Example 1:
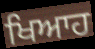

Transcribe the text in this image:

ਖਿਆਹ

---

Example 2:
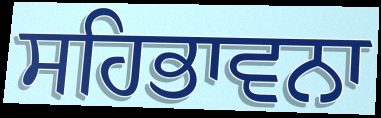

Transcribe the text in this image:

ਸਹਿਭਾਵਨਾ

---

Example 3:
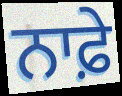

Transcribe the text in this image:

ਨਾਫ਼ੇ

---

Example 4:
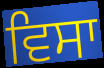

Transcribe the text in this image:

ਵਿਸਾ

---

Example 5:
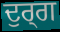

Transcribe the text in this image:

ਦੁਰ੍ਗ